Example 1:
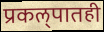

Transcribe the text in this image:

प्रकल्पातही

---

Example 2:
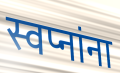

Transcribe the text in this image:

स्वप्नांना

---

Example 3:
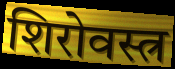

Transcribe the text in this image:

शिरोवस्त्र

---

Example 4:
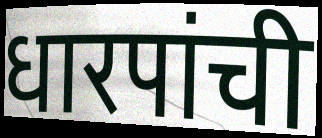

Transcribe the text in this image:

धारपांची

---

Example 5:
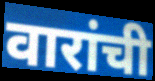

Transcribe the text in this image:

वारांची